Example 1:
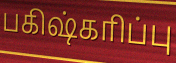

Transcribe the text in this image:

பகிஷ்கரிப்பு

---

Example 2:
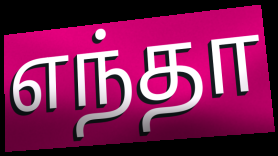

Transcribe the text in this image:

எந்தா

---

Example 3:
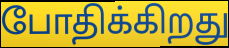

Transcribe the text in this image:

போதிக்கிறது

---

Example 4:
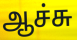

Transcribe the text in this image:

ஆச்சு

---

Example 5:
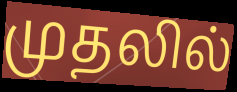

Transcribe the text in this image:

முதலில்